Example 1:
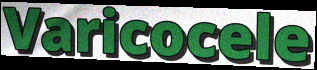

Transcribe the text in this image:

Varicocele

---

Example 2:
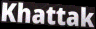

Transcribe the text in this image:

Khattak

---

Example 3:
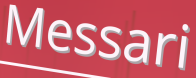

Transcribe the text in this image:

Messari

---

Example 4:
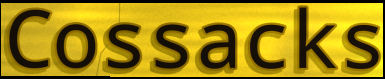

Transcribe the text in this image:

Cossacks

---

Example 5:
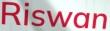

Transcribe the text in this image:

Riswan